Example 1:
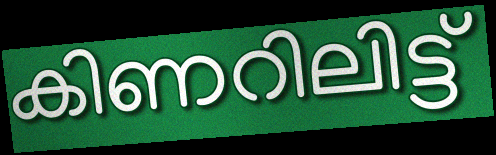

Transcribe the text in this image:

കിണറിലിട്ട്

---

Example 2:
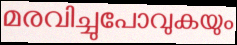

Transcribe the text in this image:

മരവിച്ചുപോവുകയും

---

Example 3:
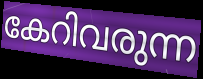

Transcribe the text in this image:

കേറിവരുന്ന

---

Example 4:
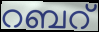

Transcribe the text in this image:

റബറ്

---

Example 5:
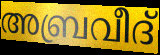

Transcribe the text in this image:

അബ്രവീദ്